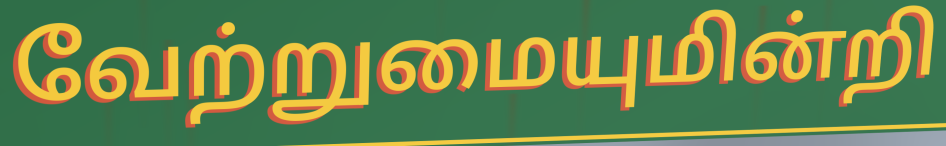
வேற்றுமையுமின்றி